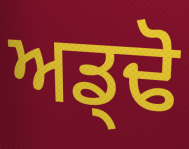
ਅਡ੍ਢੋ